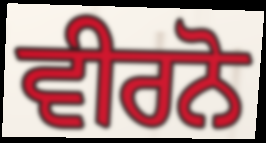
ਵੀਰਨੋ